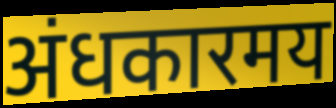
अंधकारमय